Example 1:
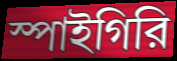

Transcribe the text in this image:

স্পাইগিরি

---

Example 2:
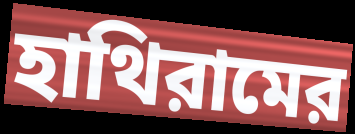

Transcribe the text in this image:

হাথিরামের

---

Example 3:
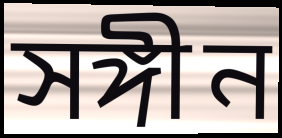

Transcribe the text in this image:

সঙ্গীন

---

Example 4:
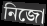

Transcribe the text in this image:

নিজো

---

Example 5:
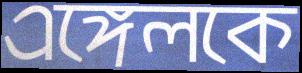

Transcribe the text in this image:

এঙ্গেলকে